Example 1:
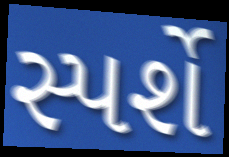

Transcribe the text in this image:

સ્પર્શે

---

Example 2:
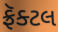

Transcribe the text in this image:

ફ્રૅક્ટલ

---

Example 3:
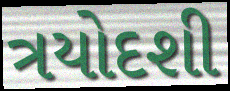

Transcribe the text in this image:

ત્રયોદશી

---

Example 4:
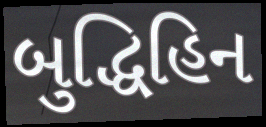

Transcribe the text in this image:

બુદ્ધિહિન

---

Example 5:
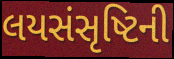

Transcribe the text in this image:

લયસંસૃષ્ટિની